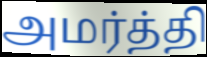
அமர்த்தி